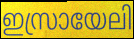
ഇസ്രായേലി